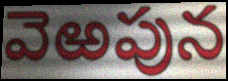
వెఱపున